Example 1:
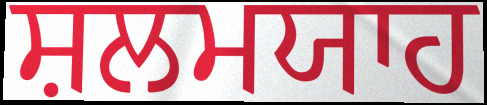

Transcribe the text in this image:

ਸ਼ਲਮਯਾਹ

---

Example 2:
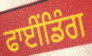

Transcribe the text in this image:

ਫਾਈਂਡਿੰਗ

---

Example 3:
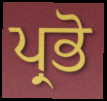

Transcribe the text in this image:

ਪ੍ਰਭੋ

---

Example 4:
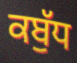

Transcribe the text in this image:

ਕਬੁੱਧ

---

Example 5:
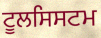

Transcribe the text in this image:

ਟੂਲਸਿਸਟਮ